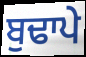
ਬੁਢਾਪੇ